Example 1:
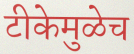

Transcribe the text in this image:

टीकेमुळेच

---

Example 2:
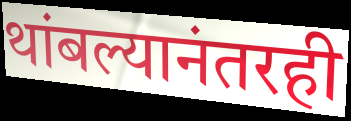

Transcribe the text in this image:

थांबल्यानंतरही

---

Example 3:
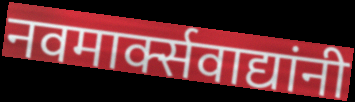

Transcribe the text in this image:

नवमार्क्सवाद्यांनी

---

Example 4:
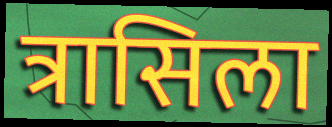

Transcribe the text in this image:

त्रासिला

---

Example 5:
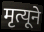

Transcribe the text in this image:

मृत्यूने